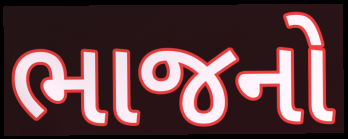
ભાજનો